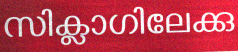
സിക്ലാഗിലേക്കു